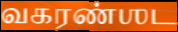
வகரண்ஶட